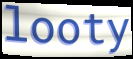
looty